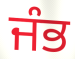
ਜੰਭ